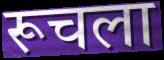
रूचला